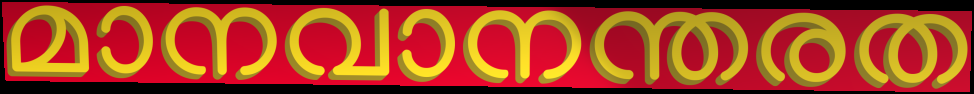
മാനവാനന്തരത